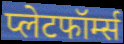
प्लेटफॉर्म्स